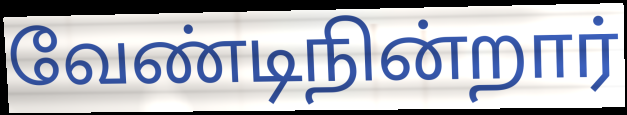
வேண்டிநின்றார்